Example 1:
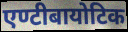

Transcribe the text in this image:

एण्टीबायोटिक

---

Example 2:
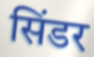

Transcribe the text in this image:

सिंडर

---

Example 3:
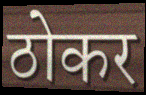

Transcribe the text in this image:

ठोकर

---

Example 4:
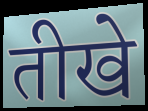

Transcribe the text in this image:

तीखे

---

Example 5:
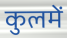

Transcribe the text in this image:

कुलमें